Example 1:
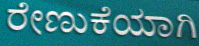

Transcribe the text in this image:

ರೇಣುಕೆಯಾಗಿ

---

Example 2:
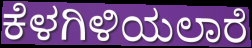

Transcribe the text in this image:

ಕೆಳಗಿಳಿಯಲಾರೆ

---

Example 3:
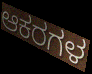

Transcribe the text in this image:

ಆಕರಗಳ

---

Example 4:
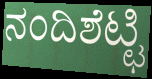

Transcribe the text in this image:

ನಂದಿಶೆಟ್ಟಿ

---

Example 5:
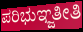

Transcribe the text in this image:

ಪರಿಭುಞ್ಜತೀತಿ